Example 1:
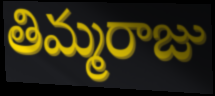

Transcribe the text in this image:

తిమ్మరాజు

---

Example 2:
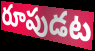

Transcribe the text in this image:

రూపుడట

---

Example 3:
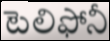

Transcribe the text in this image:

టెలిఫోనీ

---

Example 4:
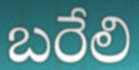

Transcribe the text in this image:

బరేలి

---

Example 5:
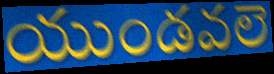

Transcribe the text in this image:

యుండవలె